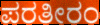
ಪರತೀರಂ